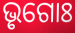
ଭୃଗୋଃ